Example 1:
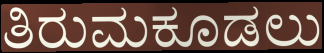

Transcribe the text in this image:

ತಿರುಮಕೂಡಲು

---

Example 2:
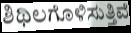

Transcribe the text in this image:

ಶಿಥಿಲಗೊಳಿಸುತ್ತಿವೆ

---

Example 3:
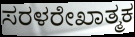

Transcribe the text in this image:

ಸರಳರೇಖಾತ್ಮಕ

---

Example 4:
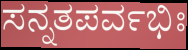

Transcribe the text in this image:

ಸನ್ನತಪರ್ವಭಿಃ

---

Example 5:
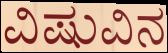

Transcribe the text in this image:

ವಿಷುವಿನ